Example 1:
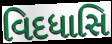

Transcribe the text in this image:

વિદધાસિ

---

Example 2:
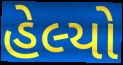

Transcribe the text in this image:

હેલ્યો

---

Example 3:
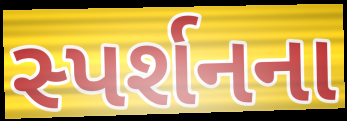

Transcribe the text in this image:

સ્પર્શનના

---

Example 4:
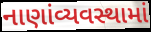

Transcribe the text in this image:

નાણાંવ્યવસ્થામાં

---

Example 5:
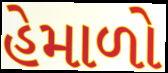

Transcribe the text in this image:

હેમાળો